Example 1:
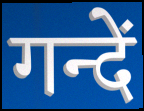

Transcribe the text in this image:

गन्दें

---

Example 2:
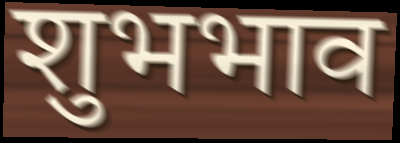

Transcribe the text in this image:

शुभभाव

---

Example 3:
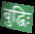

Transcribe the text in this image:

बुद्धिः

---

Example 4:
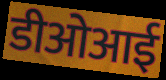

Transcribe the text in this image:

डीओआई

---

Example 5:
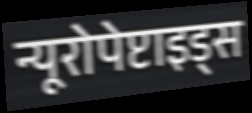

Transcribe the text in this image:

न्यूरोपेप्टाइड्स